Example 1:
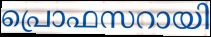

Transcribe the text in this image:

പ്രൊഫസറായി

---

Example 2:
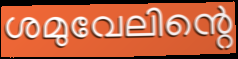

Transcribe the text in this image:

ശമുവേലിന്റെ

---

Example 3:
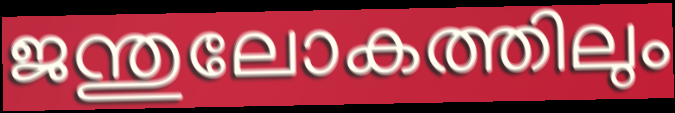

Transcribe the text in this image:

ജന്തുലോകത്തിലും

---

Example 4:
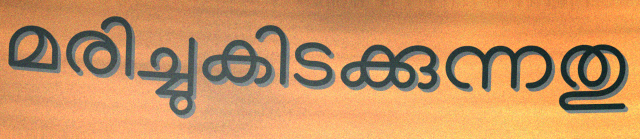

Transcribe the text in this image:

മരിച്ചുകിടക്കുന്നതു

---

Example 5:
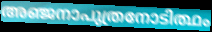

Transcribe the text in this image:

അഞ്ജനാപുത്രനോടിത്ഥം